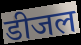
डीजल